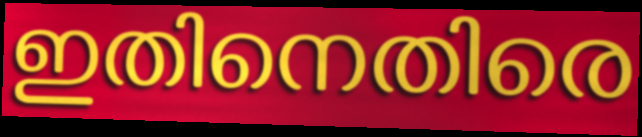
ഇതിനെതിരെ